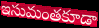
ఇసుమంతకూడా